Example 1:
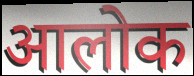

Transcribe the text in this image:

आलोक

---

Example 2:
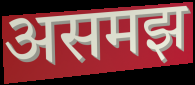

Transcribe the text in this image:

असमझ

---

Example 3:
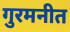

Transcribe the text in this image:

गुरमनीत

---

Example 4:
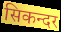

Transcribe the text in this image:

सिकन्दर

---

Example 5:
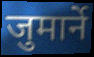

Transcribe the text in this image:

जुमार्ने